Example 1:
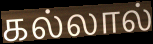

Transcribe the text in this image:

கல்லால்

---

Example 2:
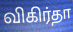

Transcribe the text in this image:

விகிர்தா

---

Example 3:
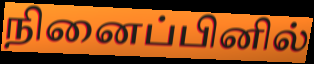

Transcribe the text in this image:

நினைப்பினில்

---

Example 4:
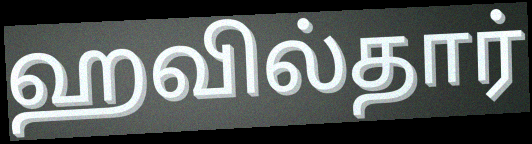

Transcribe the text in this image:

ஹவில்தார்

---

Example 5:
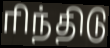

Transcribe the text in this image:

ரிந்திடு